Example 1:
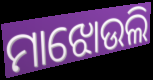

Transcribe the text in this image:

ମାଝୋଉଲି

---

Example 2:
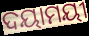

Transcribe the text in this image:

ଦୟାମୟୀ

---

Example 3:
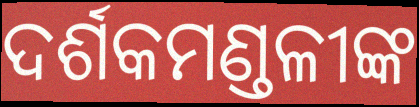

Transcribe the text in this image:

ଦର୍ଶକମଣ୍ଡଳୀଙ୍କ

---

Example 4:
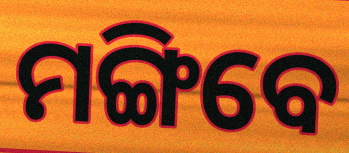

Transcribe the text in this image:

ମଙ୍ଗିବେ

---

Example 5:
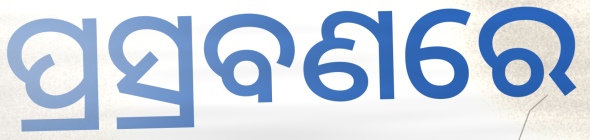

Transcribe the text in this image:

ପ୍ରସ୍ରବଣରେ